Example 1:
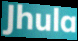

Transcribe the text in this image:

Jhula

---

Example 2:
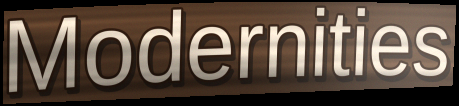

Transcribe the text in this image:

Modernities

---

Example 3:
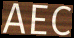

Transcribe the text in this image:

AEC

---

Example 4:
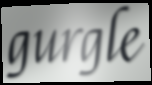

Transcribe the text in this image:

gurgle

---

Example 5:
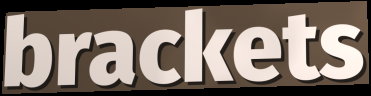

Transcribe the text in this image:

brackets